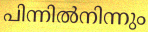
പിന്നിൽനിന്നും